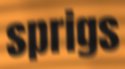
sprigs